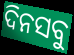
ଦିନସବୁ